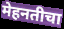
मेहनतीचा